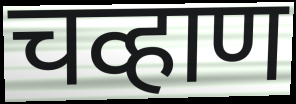
चव्हाण